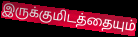
இருக்குமிடத்தையும்